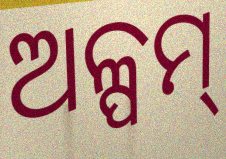
ଅଳ୍ପମ୍